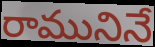
రామునినే